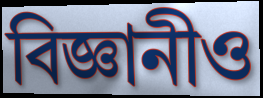
বিজ্ঞানীও